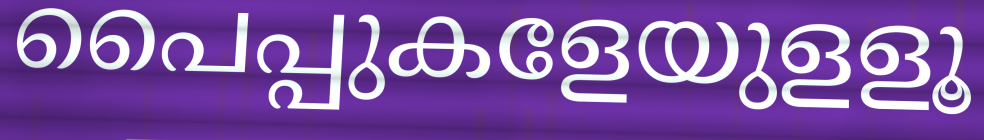
പൈപ്പുകളേയുളളൂ